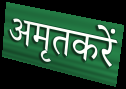
अमृतकरें